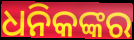
ଧନିକଙ୍କର